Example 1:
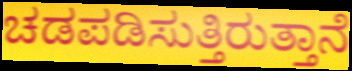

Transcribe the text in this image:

ಚಡಪಡಿಸುತ್ತಿರುತ್ತಾನೆ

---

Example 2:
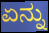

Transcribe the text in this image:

ಏನ್ನು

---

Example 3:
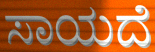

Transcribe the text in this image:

ಸಾಯದೆ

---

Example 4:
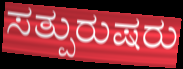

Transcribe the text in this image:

ಸತ್ಪುರುಷರು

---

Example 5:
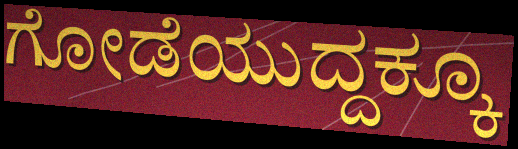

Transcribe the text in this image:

ಗೋಡೆಯುದ್ದಕ್ಕೂ